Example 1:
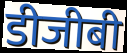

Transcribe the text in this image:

डीजीबी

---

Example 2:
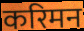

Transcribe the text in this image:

करिमन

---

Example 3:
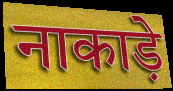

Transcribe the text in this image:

नाकाड़े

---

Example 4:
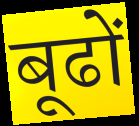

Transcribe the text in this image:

बूढों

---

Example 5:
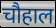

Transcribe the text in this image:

चौहाल